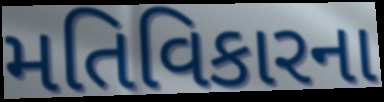
મતિવિકારના